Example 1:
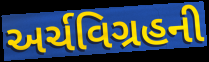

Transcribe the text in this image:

અર્ચવિગ્રહની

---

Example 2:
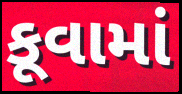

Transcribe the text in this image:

કૂવામાં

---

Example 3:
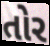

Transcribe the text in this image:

તોર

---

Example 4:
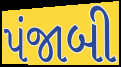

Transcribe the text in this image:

પંજાબી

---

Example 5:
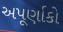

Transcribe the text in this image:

અપૂર્ણાકો